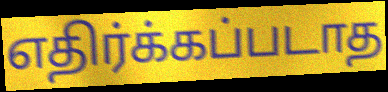
எதிர்க்கப்படாத